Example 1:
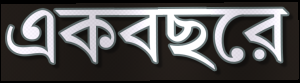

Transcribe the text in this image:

একবছরে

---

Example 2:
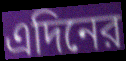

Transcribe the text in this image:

এদিনের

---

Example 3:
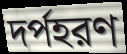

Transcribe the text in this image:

দর্পহরণ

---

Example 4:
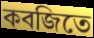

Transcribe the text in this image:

কবজিতে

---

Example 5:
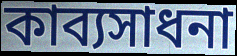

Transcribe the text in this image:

কাব্যসাধনা